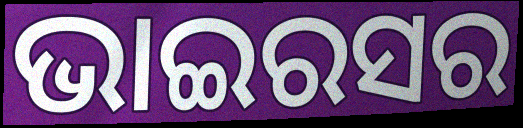
ଭାଇରସର